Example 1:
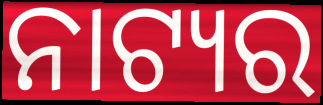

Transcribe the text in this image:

ନାଟ୍ୟର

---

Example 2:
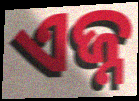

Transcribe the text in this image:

ଏଜ୍ନ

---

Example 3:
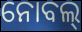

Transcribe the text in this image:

ନୋବଲ୍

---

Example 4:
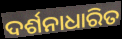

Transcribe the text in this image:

ଦର୍ଶନାଧାରିତ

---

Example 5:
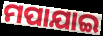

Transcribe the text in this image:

ମପାଯାଇ